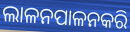
ଲାଳନପାଳନକରି